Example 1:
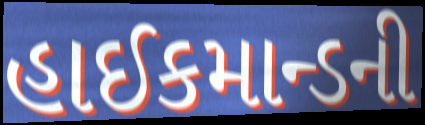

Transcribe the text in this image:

હાઈકમાન્ડની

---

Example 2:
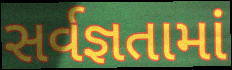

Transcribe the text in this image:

સર્વજ્ઞતામાં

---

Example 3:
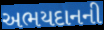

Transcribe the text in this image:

અભયદાનની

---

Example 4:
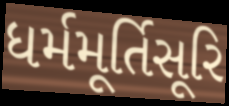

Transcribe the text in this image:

ધર્મમૂર્તિસૂરિ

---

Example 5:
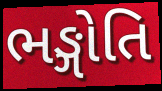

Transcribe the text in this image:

ભઙ્ગોતિ